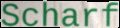
Scharf